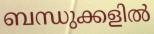
ബന്ധുക്കളിൽ